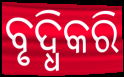
ବୃଦ୍ଧିକରି